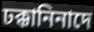
ঢক্কানিনাদে